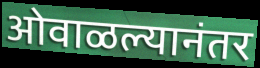
ओवाळल्यानंतर